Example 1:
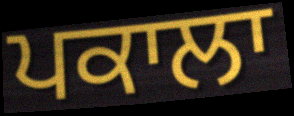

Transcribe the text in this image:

ਪਕਾਲਾ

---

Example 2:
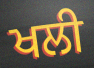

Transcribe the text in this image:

ਖਲੀ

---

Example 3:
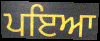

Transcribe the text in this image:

ਪਇਆ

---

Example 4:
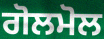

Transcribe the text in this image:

ਗੋਲਮੋਲ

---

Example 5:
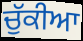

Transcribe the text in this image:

ਚੁੱਕੀਆ